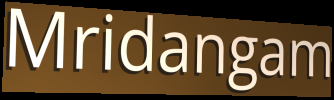
Mridangam